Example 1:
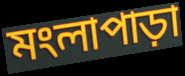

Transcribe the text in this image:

মংলাপাড়া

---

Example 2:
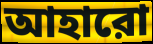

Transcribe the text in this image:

আহারো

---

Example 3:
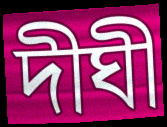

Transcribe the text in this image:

দীঘী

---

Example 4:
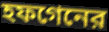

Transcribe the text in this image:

হফগেনের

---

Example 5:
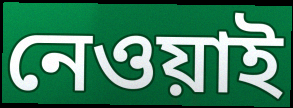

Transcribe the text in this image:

নেওয়াই